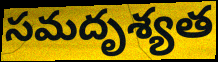
సమదృశ్యత